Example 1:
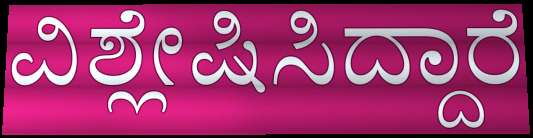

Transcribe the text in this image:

ವಿಶ್ಲೇಷಿಸಿದ್ದಾರೆ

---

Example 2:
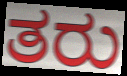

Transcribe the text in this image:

ತರು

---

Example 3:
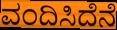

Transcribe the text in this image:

ವಂದಿಸಿದೆನೆ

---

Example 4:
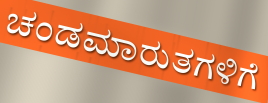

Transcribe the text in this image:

ಚಂಡಮಾರುತಗಳಿಗೆ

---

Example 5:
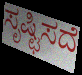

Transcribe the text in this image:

ಸೃಷ್ಟಿಸದೆ